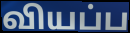
வியப்ப